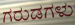
ಗರುಡಗಳು